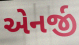
એનર્જી